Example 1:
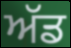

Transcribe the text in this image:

ਅੱਡ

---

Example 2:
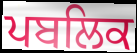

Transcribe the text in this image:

ਪਬਲਿਕ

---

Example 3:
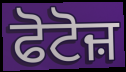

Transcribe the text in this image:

ਫੋਟੋਜ਼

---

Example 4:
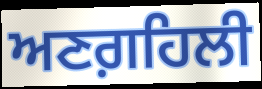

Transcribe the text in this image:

ਅਣਗ਼ਹਿਲੀ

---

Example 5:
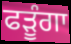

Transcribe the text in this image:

ਫੜੂੰਗਾ